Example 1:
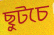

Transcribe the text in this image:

ছুটচে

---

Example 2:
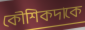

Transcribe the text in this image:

কৌশিকদাকে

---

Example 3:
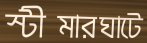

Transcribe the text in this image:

স্টীমারঘাটে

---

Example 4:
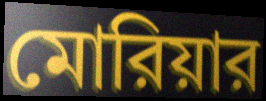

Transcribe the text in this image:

মোরিয়ার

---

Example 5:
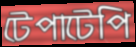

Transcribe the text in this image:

টেপাটেপি